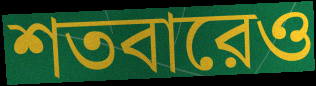
শতবারেও